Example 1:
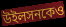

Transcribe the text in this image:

উইলসনকেও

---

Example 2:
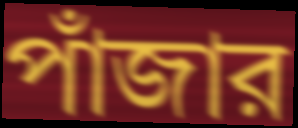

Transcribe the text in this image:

পাঁজার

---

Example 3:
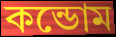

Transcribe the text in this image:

কন্ডোম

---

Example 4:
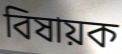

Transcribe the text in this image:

বিষায়ক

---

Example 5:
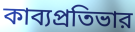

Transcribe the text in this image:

কাব্যপ্রতিভার